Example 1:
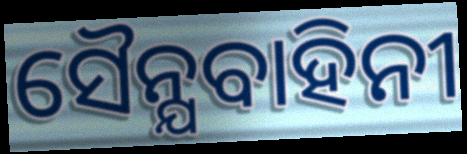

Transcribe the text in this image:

ସୈନ୍ଯବାହିନୀ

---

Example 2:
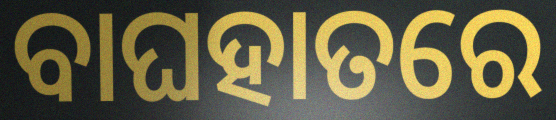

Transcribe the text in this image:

ବାଘହାତରେ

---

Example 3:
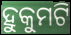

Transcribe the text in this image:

ହୁକୁମଟି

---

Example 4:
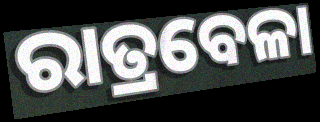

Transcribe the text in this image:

ରାତ୍ରବେଳା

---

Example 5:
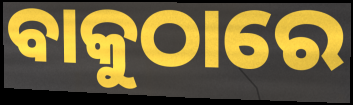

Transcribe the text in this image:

ବାକୁଠାରେ